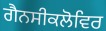
ਗੈਨਸੀਕਲੋਵਿਰ